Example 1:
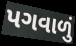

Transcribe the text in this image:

પગવાળું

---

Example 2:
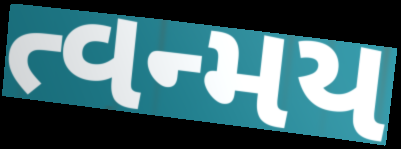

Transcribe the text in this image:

ત્વન્મય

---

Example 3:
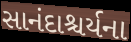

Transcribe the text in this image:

સાનંદાશ્ચર્યના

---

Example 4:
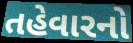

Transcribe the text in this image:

તહેવારનો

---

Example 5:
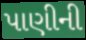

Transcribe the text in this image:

પાણીની